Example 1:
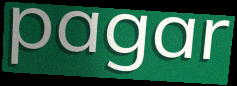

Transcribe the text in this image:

pagar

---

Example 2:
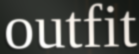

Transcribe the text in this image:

outfit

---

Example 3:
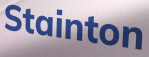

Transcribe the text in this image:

Stainton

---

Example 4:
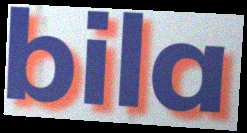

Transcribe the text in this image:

bila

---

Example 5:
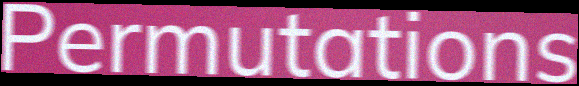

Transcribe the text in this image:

Permutations